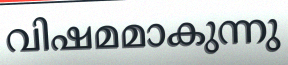
വിഷമമാകുന്നു